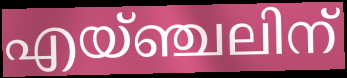
എയ്ഞ്ചലിന്